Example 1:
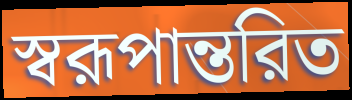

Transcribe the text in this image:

স্বরূপান্তরিত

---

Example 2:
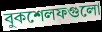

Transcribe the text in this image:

বুকশেলফগুলো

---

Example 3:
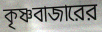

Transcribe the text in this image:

কৃষ্ণবাজারের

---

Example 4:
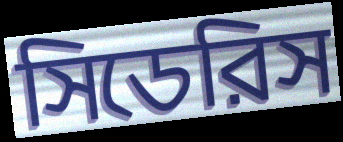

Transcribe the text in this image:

সিডেরিস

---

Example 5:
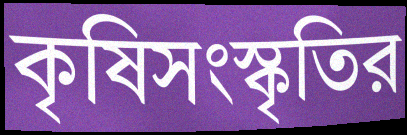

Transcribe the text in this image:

কৃষিসংস্কৃতির